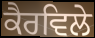
ਕੈਰਵਿਲੇ